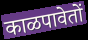
काळपावेतों